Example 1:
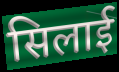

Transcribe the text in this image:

सिलाई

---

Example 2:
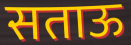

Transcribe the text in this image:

सताऊ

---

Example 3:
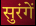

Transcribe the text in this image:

सुरंगें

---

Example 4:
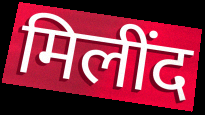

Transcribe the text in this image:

मिलींद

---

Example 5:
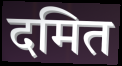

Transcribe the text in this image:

दमित